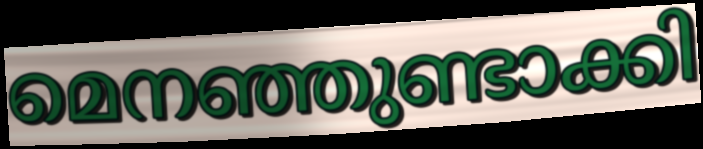
മെനഞ്ഞുണ്ടാക്കി